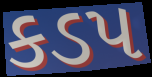
કડપ